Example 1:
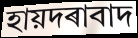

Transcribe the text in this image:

হায়দৰাবাদ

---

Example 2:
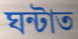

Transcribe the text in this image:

ঘন্টাত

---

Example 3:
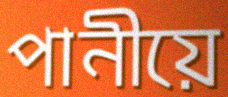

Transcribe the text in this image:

পানীয়ে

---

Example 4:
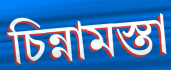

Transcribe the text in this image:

চিন্নামস্তা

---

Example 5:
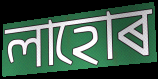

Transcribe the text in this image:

লাহোৰ